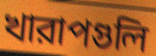
খারাপগুলি